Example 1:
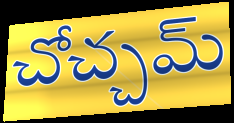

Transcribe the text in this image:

చోచ్చమ్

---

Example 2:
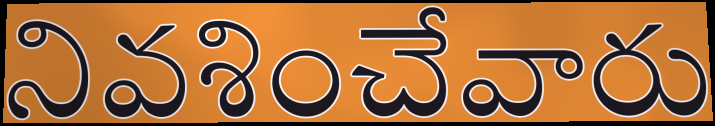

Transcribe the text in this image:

నివశించేవారు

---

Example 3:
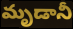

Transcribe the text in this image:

మృడానీ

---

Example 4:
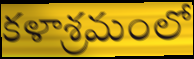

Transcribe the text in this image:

కళాశ్రమంలో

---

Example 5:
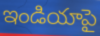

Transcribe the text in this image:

ఇండియాపై